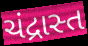
ચંદ્રાસ્ત